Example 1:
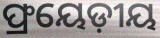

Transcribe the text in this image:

ଫ୍ରୟେଡ଼ୀୟ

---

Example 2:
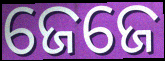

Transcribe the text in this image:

ଜେଜେ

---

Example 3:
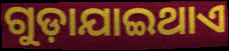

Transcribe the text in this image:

ଗୁଡ଼ାଯାଇଥାଏ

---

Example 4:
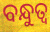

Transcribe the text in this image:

ବନ୍ଧୁତ୍ୱ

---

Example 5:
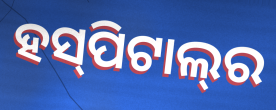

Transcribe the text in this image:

ହସ୍‍ପିଟାଲ୍‍ର